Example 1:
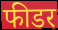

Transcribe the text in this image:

फीडर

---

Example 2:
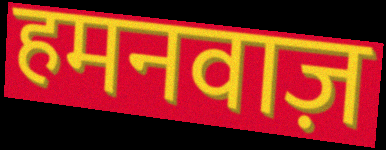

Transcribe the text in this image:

हमनवाज़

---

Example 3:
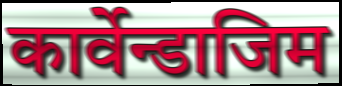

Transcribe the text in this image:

कार्वेन्डाजिम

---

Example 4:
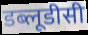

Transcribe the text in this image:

डब्लूडीसी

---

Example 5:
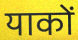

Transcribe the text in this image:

याकों